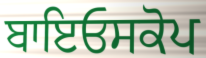
ਬਾਇਓਸਕੋਪ